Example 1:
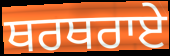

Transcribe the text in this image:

ਥਰਥਰਾਏ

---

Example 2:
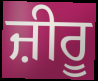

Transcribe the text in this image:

ਜ਼ੀਰੂ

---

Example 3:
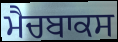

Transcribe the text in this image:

ਮੈਚਬਾਕਸ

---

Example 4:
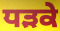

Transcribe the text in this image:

ਧੜਕੇ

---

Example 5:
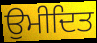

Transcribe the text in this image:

ਉਮੀਦਿਤ